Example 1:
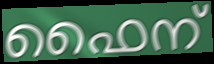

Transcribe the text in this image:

ഫൈന്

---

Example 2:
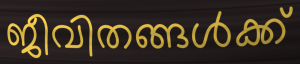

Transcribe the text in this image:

ജീവിതങ്ങൾക്ക്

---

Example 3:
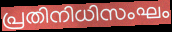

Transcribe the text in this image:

പ്രതിനിധിസംഘം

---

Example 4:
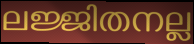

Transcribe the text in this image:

ലജ്ജിതനല്ല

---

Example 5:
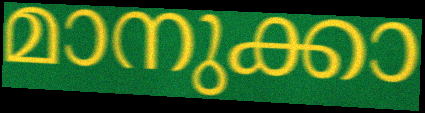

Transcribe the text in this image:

മാനുക്കാ